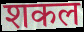
शकल